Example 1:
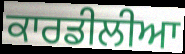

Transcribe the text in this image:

ਕਾਰਡੀਲੀਆ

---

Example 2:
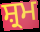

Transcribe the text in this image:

ਸ਼੍ਰਮ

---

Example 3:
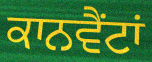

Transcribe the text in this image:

ਕਾਨਵੈਂਟਾਂ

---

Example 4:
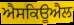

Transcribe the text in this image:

ਐਸਕਿਊਐਲ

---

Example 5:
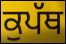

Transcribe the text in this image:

ਕੁਪੱਥ